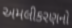
અમલીકરણનો